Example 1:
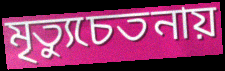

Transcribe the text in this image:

মৃত্যুচেতনায়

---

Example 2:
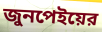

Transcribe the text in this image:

জুনপেইয়ের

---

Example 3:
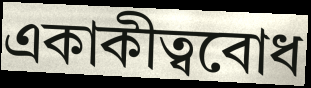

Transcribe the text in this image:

একাকীত্ববোধ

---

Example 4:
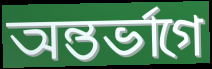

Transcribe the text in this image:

অন্তর্ভাগে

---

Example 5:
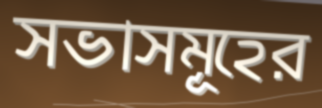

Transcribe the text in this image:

সভাসমূহের